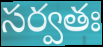
సర్వతః